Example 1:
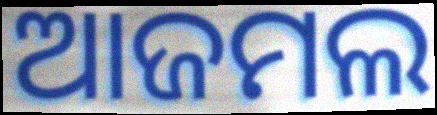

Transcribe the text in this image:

ଆଜମଲ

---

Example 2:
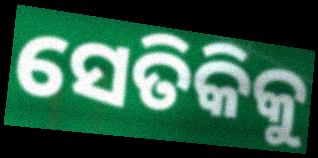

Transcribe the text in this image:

ସେତିକିକୁ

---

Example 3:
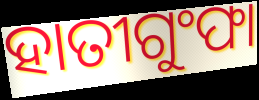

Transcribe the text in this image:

ହାତୀଗୁଂଫା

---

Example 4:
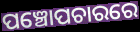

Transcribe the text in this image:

ପଞ୍ଚୋପଚାରରେ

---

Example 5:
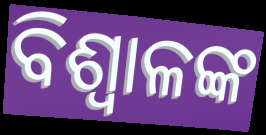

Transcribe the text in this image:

ବିଶ୍ୱାଳଙ୍କ